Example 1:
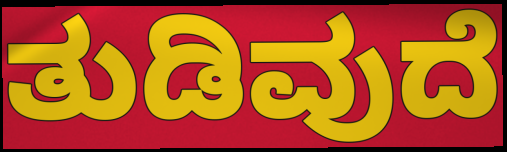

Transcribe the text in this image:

ತುಡಿವುದೆ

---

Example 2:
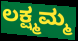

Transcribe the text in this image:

ಲಕ್ಷ್ಮಮ್ಮ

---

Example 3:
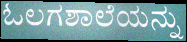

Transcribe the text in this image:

ಓಲಗಶಾಲೆಯನ್ನು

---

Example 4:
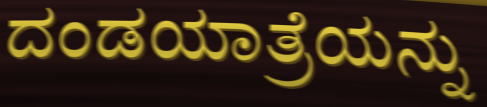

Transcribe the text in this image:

ದಂಡಯಾತ್ರೆಯನ್ನು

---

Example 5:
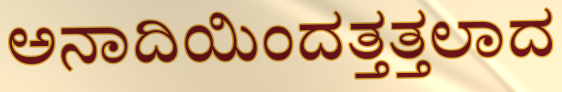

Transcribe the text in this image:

ಅನಾದಿಯಿಂದತ್ತತ್ತಲಾದ